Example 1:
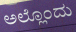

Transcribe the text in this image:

ಅಲ್ಲೊಂದು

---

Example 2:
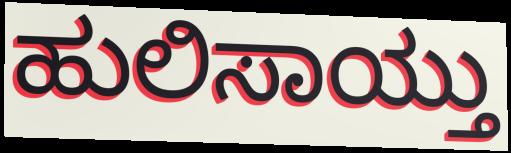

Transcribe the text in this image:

ಹುಲಿಸಾಯ್ತು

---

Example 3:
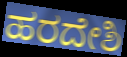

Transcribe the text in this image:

ಹರದೇಶಿ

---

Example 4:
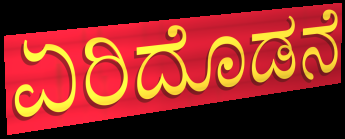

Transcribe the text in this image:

ಏರಿದೊಡನೆ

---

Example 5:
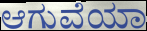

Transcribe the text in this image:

ಆಗುವೆಯಾ